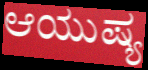
ಆಯುಷ್ಯ